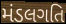
મંડલગતિ